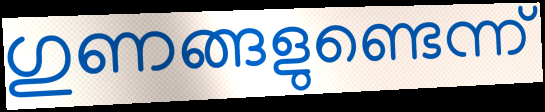
ഗുണങ്ങളുണ്ടെന്ന്